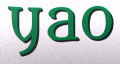
yao